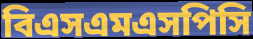
বিএসএমএসপিসি